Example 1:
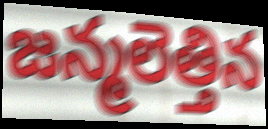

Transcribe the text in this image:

జన్మలెత్తిన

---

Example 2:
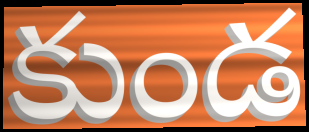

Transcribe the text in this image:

కుండ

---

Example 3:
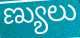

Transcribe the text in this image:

ణ్యులు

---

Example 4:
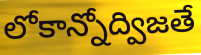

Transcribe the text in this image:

లోకాన్నోద్విజతే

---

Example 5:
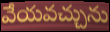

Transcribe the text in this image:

వేయవచ్చును